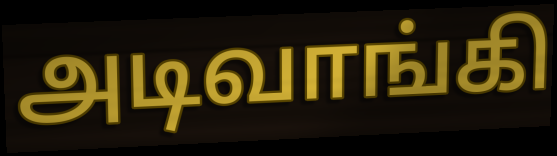
அடிவாங்கி